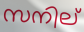
സനില്